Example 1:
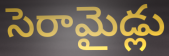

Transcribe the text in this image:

సెరామైడ్లు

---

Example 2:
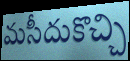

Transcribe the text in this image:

మసీదుకొచ్చి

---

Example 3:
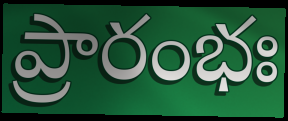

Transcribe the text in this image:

ప్రారంభః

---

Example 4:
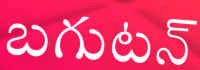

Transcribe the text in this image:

బగుటన్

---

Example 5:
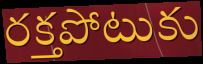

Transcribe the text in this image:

రక్తపోటుకు